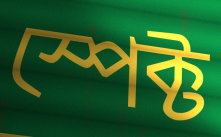
স্পেক্ট